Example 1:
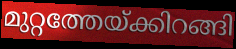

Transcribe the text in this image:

മുറ്റത്തേയ്ക്കിറങ്ങി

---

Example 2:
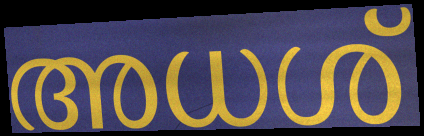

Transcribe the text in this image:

അധശ്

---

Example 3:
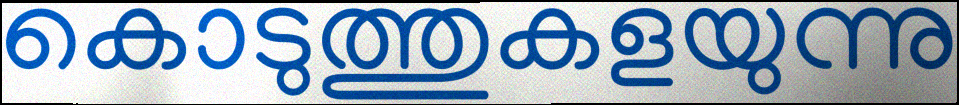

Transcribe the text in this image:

കൊടുത്തുകളയുന്നു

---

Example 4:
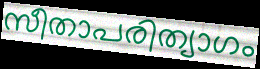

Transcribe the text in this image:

സീതാപരിത്യാഗം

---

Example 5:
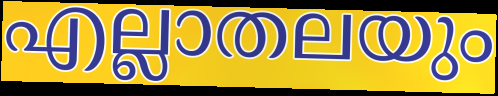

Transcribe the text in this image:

എല്ലാതലയും